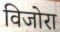
विजोरा